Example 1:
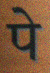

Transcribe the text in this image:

पे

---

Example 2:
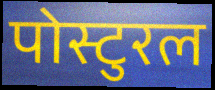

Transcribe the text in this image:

पोस्टुरल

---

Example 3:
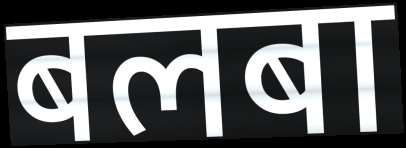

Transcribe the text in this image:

बलबा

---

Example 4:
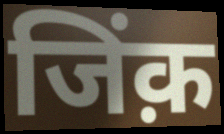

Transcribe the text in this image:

जिंक़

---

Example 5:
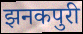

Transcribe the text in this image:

झनकपुरी